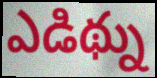
ఎడిథ్ను